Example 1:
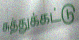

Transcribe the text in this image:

சுத்துக்கட்டு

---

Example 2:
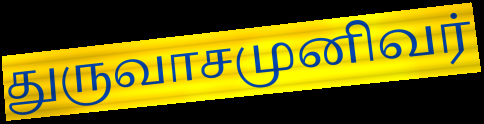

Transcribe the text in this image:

துருவாசமுனிவர்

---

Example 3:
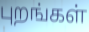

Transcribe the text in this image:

புறங்கள்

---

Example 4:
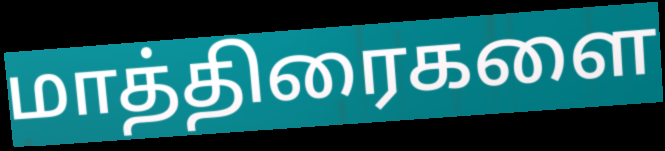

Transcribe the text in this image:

மாத்திரைகளை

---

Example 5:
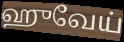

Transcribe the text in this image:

ஹுவேய்